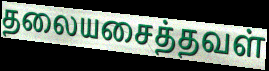
தலையசைத்தவள்